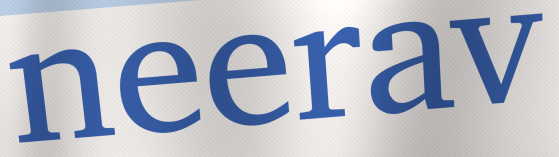
neerav